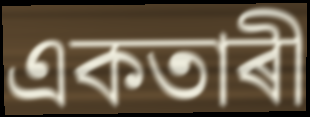
একতাৰী